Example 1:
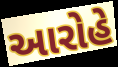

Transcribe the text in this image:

આરોહે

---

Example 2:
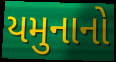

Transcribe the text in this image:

યમુનાનો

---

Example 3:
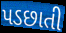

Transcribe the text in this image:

પડછાતી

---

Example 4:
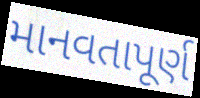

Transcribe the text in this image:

માનવતાપૂર્ણ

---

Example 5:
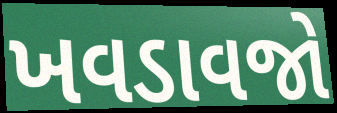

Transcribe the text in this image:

ખવડાવજો